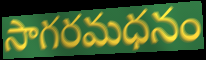
సాగరమధనం